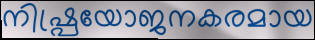
നിഷ്പ്രയോജനകരമായ